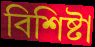
বিশিষ্টা